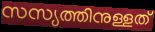
സസ്യത്തിനുള്ളത്